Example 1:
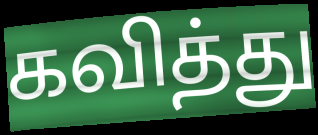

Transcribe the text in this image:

கவித்து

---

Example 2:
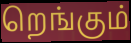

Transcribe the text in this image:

றெங்கும்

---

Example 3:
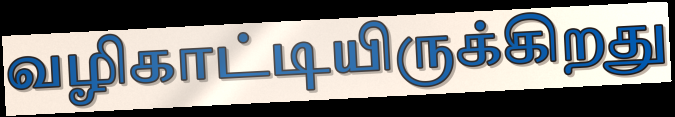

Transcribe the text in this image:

வழிகாட்டியிருக்கிறது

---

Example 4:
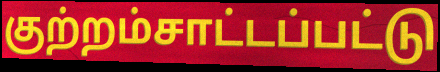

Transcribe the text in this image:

குற்றம்சாட்டப்பட்டு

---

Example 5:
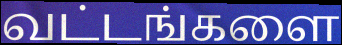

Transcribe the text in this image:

வட்டங்களை